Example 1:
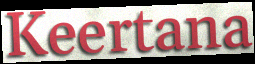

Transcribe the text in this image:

Keertana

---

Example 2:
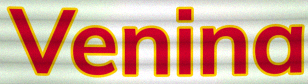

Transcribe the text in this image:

Venina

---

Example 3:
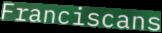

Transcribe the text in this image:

Franciscans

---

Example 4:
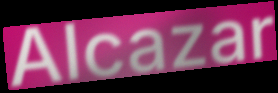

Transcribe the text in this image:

Alcazar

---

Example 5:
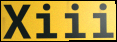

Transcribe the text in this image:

Xiii